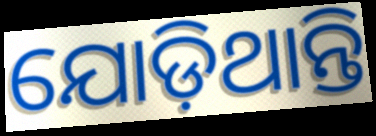
ଯୋଡ଼ିଥାନ୍ତି